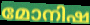
മോനിഷ